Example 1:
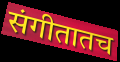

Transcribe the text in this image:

संगीतातच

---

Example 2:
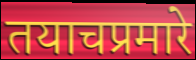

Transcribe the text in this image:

तयाचप्रमारे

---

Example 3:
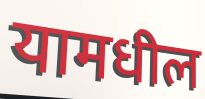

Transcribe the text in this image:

यामधील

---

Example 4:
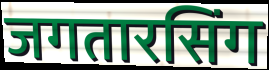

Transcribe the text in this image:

जगतारसिंग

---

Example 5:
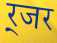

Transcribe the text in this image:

र्जर